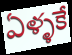
ఏళ్ళకే